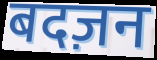
बदज़न